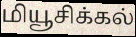
மியூசிக்கல்